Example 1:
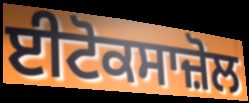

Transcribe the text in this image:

ਈਟੋਕਸਾਜ਼ੋਲ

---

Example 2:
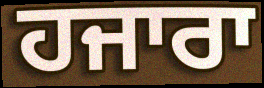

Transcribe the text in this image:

ਹਜਾਰਾ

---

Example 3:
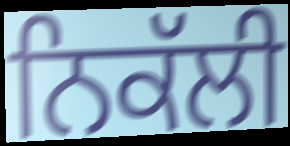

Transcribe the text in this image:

ਨਿਕੱਲੀ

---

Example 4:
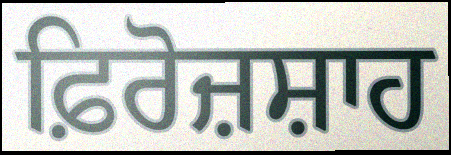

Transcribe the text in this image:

ਫ਼ਿਰੋਜ਼ਸ਼ਾਹ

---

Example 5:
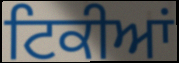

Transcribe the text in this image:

ਟਿਕੀਆਂ